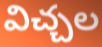
విచ్చల